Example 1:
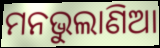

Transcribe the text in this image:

ମନଭୁଲାଣିଆ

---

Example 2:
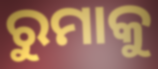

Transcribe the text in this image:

ରୁମାକୁ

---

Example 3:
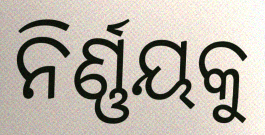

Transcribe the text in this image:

ନିର୍ଣ୍ଣୟକୁ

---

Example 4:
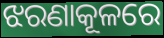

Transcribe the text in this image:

ଝରଣାକୂଳରେ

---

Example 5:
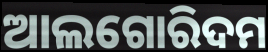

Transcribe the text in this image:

ଆଲଗୋରିଦମ